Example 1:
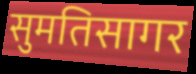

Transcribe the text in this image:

सुमतिसागर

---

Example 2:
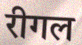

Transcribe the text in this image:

रीगल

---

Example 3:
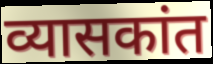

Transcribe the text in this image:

व्यासकांत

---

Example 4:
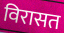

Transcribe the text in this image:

विरासत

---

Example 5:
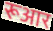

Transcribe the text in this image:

रूआर